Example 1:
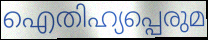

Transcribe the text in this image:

ഐതിഹ്യപ്പെരുമ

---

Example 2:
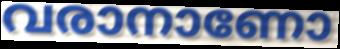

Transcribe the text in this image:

വരാനാണോ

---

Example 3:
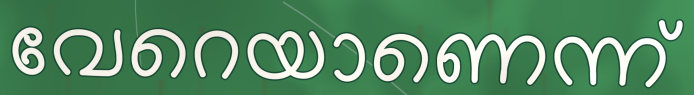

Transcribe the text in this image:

വേറെയാണെന്ന്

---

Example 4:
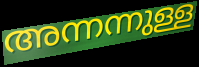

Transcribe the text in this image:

അന്നന്നുള്ള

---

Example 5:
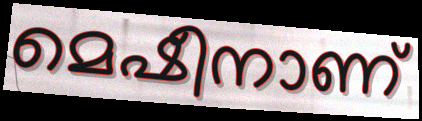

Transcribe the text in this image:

മെഷീനാണ്